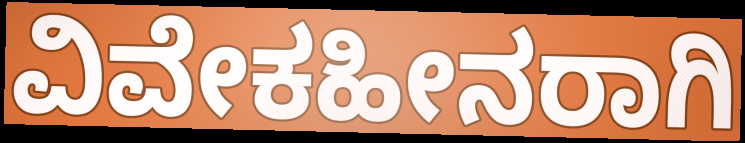
ವಿವೇಕಹೀನರಾಗಿ